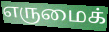
எருமைக்